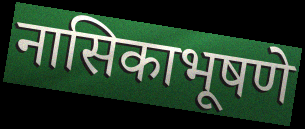
नासिकाभूषणे